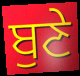
ਬੁਣੇ